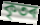
কৃতৰ